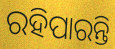
ରହିପାରନ୍ତି